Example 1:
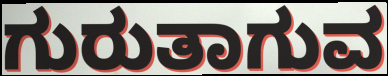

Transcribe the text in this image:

ಗುರುತಾಗುವ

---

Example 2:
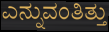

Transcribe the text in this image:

ಎನ್ನುವಂತಿತ್ತು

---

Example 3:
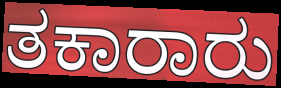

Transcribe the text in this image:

ತಕಾರಾರು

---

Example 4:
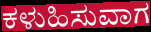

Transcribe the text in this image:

ಕಳುಹಿಸುವಾಗ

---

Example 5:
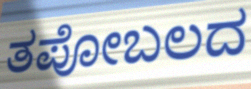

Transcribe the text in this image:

ತಪೋಬಲದ